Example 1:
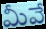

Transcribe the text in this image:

మీవే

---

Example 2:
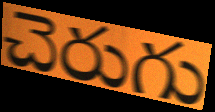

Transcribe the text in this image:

చెరుగు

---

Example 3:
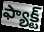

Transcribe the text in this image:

ఫ్యాక్ట్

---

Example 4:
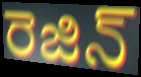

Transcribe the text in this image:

రెజిన్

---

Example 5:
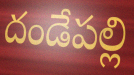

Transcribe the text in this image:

దండేపల్లి